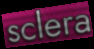
sclera